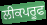
ਲੀਕਪਰੂਫ